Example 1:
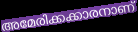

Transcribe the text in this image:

അമേരിക്കക്കാരനാണ്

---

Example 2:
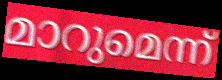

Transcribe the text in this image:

മാറുമെന്ന്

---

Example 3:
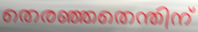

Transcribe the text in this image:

തെരഞ്ഞതെന്തിന്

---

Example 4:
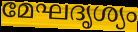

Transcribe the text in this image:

മേഘദൃശ്യം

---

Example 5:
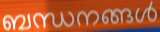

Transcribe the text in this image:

ബന്ധനങ്ങൾ